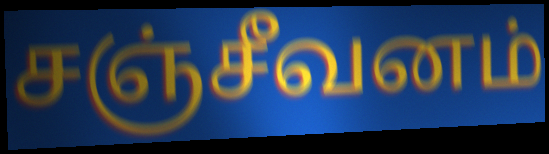
சஞ்சீவனம்